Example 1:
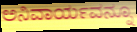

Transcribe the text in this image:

ಅನಿವಾರ್ಯವನ್ನೂ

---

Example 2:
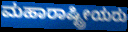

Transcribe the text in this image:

ಮಹಾರಾಷ್ಟ್ರೀಯರು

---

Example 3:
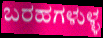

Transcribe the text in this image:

ಬರಹಗಳುಳ್ಳ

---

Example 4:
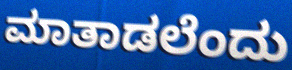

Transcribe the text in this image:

ಮಾತಾಡಲೆಂದು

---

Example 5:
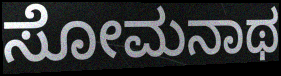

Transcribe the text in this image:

ಸೋಮನಾಥ